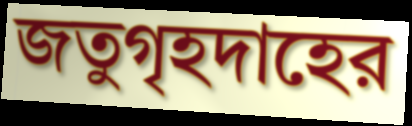
জতুগৃহদাহের